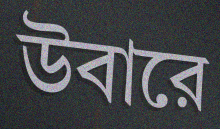
উবারে